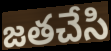
జతచేసి